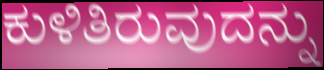
ಕುಳಿತಿರುವುದನ್ನು